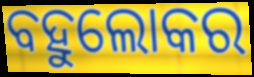
ବହୁଲୋକର